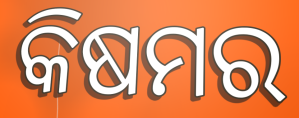
କିଷମର